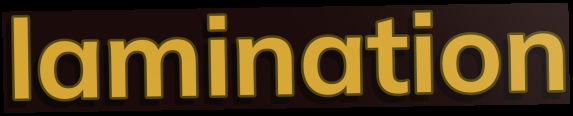
lamination